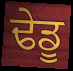
ਢੇਡੂ